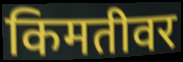
किमतीवर